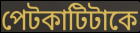
পেটকাটিটাকে